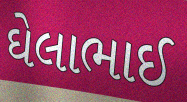
ઘેલાભાઈ